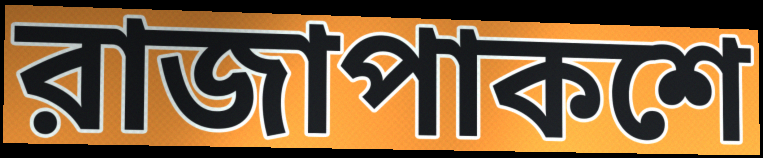
রাজাপাকশে